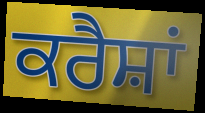
ਕਰੈਸ਼ਾਂ